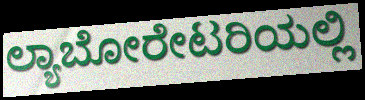
ಲ್ಯಾಬೋರೇಟರಿಯಲ್ಲಿ